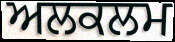
ਅਲਕਲਮ